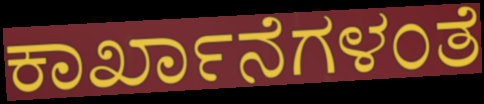
ಕಾರ್ಖಾನೆಗಳಂತೆ